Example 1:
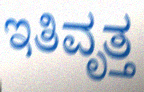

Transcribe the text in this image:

ಇತಿವೃತ್ತ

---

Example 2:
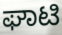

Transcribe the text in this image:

ಘಾಟಿ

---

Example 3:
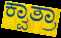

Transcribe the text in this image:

ಕ್ವಾತ್ರಾ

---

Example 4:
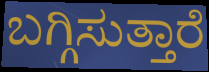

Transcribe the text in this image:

ಬಗ್ಗಿಸುತ್ತಾರೆ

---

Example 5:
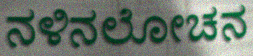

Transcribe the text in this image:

ನಳಿನಲೋಚನ